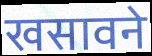
खसावने